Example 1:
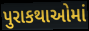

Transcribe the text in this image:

પુરાકથાઓમાં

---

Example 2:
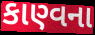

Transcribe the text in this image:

કાણ્વના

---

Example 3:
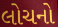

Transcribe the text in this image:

લોચનો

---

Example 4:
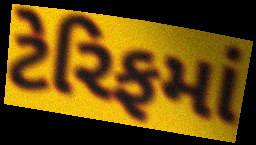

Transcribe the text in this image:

ટેરિફમાં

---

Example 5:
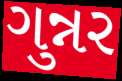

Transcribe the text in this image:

ગુન્નર